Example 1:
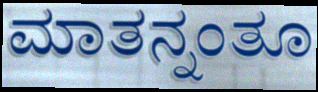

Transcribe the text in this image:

ಮಾತನ್ನಂತೂ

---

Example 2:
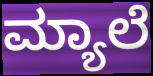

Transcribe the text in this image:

ಮ್ಯಾಲೆ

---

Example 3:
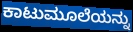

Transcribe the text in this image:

ಕಾಟುಮೂಲೆಯನ್ನು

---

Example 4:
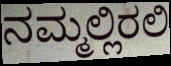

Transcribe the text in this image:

ನಮ್ಮಲ್ಲಿರಲಿ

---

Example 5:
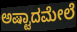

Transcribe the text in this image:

ಅಷ್ಟಾದಮೇಲೆ